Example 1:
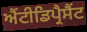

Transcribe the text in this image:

ਐਂਟੀਡਿਪ੍ਰੈਸੈਂਟ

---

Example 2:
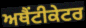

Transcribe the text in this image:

ਅਥੈਂਟੀਕੇਟਰ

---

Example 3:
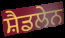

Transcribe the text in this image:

ਸ਼ੈਡਲੇਨ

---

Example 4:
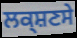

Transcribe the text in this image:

ਲਕ੍ਸ਼ਣਸੇ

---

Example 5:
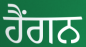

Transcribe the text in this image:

ਹੈਂਗਨ